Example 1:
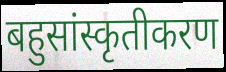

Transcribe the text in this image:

बहुसांस्कृतीकरण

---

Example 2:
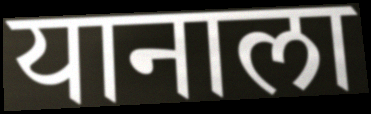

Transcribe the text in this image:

यानाला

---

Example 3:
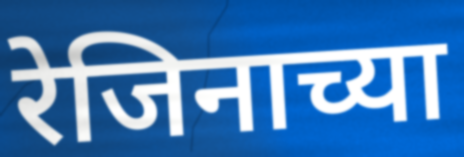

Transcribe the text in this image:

रेजिनाच्या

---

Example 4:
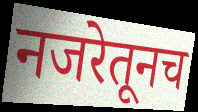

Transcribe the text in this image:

नजरेतूनच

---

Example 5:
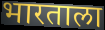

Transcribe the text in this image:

भारताला